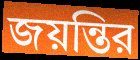
জয়ন্তির